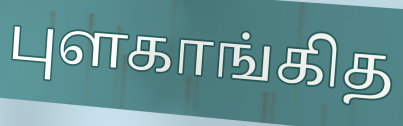
புளகாங்கித